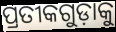
ପ୍ରତୀକଗୁଡ଼ାକୁ